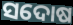
ସଦୋଷ